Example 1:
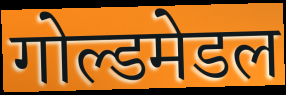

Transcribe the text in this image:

गोल्डमेडल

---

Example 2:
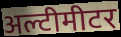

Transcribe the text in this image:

अल्टीमीटर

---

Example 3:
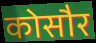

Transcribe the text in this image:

कोसौर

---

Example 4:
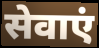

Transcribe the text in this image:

सेवाएं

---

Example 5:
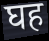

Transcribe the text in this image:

घह